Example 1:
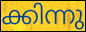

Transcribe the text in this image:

ക്കിന്നു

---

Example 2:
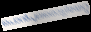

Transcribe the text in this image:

പൊൻപുലരൊളിയേറ്റു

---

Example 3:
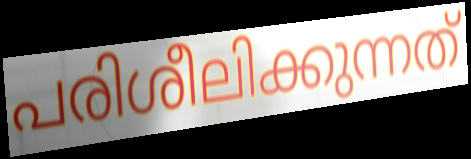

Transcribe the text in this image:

പരിശീലിക്കുന്നത്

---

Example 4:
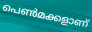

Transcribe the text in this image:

പെൺമക്കളാണ്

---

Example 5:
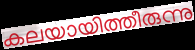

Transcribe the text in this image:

കലയായിത്തീരുന്നു